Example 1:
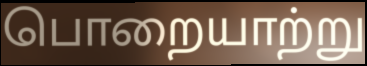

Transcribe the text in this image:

பொறையாற்று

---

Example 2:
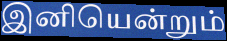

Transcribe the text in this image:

இனியென்றும்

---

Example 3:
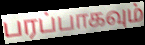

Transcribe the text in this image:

பரப்பாகவும்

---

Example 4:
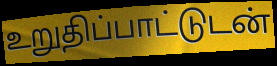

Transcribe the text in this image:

உறுதிப்பாட்டுடன்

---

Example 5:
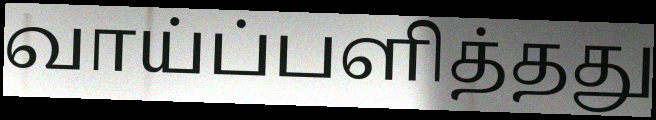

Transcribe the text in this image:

வாய்ப்பளித்தது